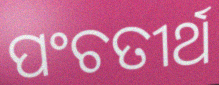
ପଂଚତୀର୍ଥ